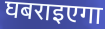
घबराइएगा